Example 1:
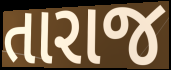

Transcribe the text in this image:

તારાજ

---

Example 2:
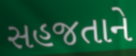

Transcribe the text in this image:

સહજતાને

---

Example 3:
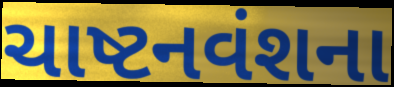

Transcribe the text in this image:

ચાષ્ટનવંશના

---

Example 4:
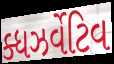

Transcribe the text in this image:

ક્ધઝર્વેટિવ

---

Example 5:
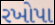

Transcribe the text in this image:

રખોપા